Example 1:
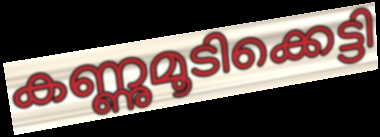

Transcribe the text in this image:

കണ്ണുമൂടിക്കെട്ടി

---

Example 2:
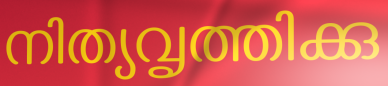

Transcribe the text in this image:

നിത്യവൃത്തിക്കു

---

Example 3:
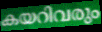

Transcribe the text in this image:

കയറിവരും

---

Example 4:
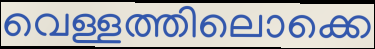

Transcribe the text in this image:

വെള്ളത്തിലൊക്കെ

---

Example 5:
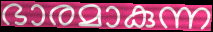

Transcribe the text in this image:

ഭാരമാകുന്ന